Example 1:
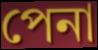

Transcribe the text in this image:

পেনা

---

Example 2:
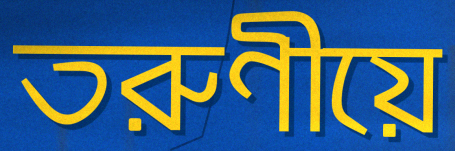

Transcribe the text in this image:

তৰুণীয়ে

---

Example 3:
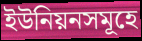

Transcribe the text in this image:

ইউনিয়নসমূহে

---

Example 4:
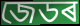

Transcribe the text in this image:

জেডৰ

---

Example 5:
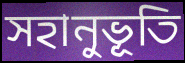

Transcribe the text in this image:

সহানুভূতি